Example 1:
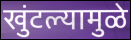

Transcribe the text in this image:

खुंटल्यामुळे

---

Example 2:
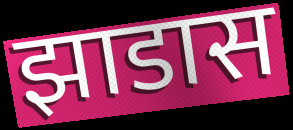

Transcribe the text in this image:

झाडास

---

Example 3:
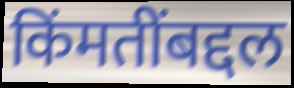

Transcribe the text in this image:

किंमतींबद्दल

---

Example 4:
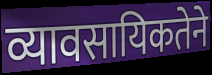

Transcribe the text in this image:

व्यावसायिकतेने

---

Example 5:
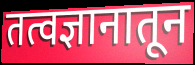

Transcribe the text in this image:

तत्वज्ञानातून